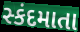
સ્કંદમાતા